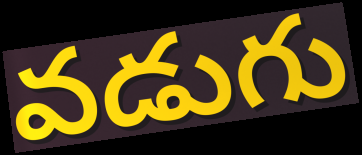
వడుగు